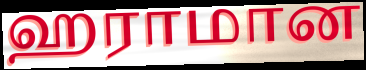
ஹராமான